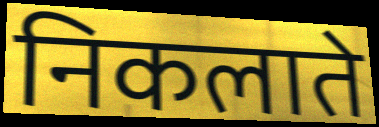
निकलाते